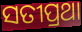
ସତୀପ୍ରଥା